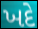
ખદે